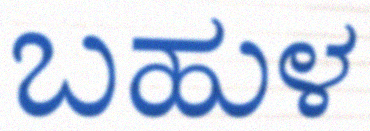
ಬಹುಳ